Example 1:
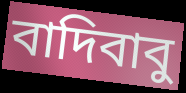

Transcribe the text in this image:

বাদিবাবু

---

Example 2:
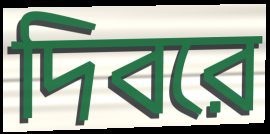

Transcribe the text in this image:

দিবরে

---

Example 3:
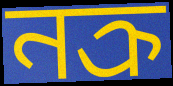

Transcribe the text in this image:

নক্র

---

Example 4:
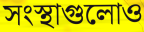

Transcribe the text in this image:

সংস্থাগুলোও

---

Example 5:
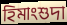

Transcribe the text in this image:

হিমাংশুদা